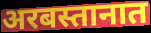
अरबस्तानात